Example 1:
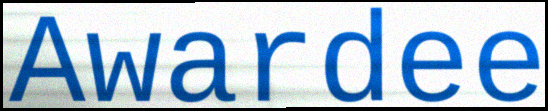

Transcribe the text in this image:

Awardee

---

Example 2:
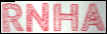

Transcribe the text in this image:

RNHA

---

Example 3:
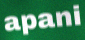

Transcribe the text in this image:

apani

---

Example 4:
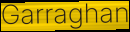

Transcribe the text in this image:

Garraghan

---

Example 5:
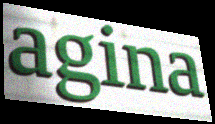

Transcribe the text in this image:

agina